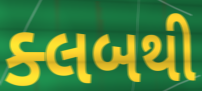
ક્લબથી